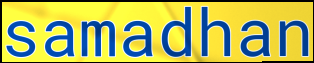
samadhan